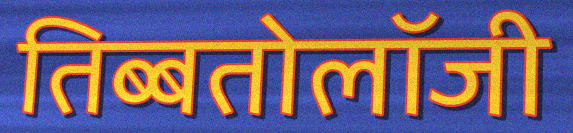
तिब्बतोलॉजी